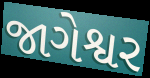
જાગેશ્વર